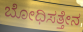
ಬೋಧಿಸತ್ತೇನ